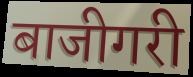
बाजीगरी